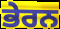
ਭੇਰਨ